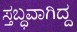
ಸ್ತಬ್ಧವಾಗಿದ್ದ